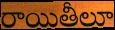
రాయితీలూ